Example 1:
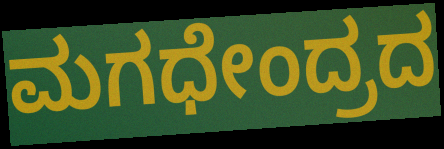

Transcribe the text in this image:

ಮಗಧೇಂದ್ರದ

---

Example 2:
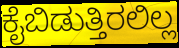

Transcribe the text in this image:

ಕೈಬಿಡುತ್ತಿರಲಿಲ್ಲ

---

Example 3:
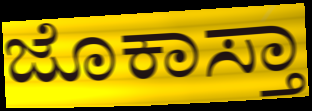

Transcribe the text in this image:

ಜೊಕಾಸ್ತಾ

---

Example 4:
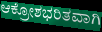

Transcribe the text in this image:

ಆಕ್ರೋಶಭರಿತವಾಗಿ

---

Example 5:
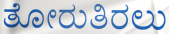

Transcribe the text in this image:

ತೋರುತಿರಲು